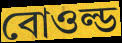
বোওল্ড